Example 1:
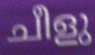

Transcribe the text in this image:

ചീളു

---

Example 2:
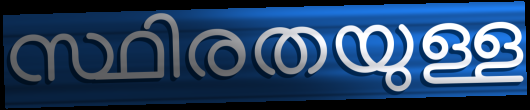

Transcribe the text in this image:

സ്ഥിരതയുള്ള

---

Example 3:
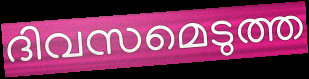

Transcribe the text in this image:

ദിവസമെടുത്ത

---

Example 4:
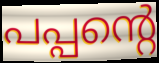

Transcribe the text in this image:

പപ്പന്റെ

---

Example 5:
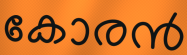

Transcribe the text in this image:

കോരൻ